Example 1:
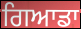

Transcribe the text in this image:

ਗਿਆਡਾ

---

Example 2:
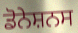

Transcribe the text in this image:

ਡੋਨੇਸ਼ਨਸ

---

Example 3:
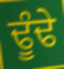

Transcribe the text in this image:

ਢੂੰਢੇ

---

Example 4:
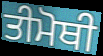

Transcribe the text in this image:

ਤੀਮੋਥੀ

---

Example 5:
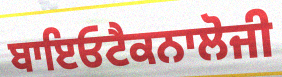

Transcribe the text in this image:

ਬਾਇਓਟੈਕਨਾਲੋਜੀ